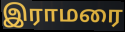
இராமரை